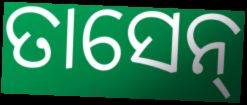
ତାସେନ୍